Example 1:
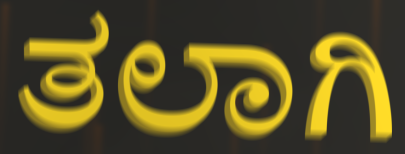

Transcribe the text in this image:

ತಲಾಗಿ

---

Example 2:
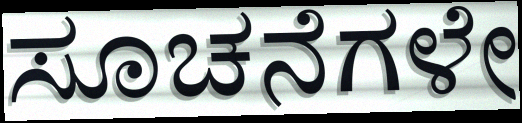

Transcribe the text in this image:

ಸೂಚನೆಗಳೇ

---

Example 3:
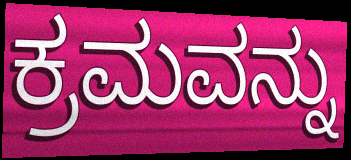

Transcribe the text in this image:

ಕ್ರಮವನ್ನು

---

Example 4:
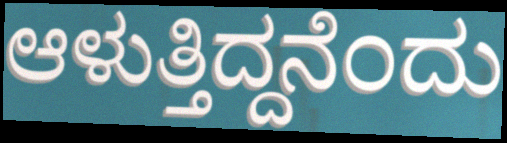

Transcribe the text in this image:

ಆಳುತ್ತಿದ್ದನೆಂದು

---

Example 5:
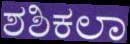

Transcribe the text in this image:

ಶಶಿಕಲಾ